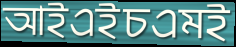
আইএইচএমই